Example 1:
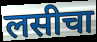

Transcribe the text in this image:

लसीचा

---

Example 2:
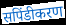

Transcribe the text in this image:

सपिंडीकरण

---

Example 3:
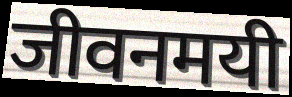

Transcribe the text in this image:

जीवनमयी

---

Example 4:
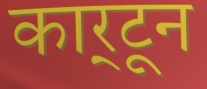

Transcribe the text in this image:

कार्टून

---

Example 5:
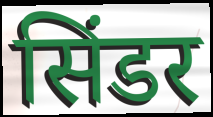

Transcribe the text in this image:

सिंडर